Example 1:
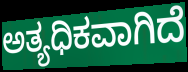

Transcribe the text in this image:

ಅತ್ಯಧಿಕವಾಗಿದೆ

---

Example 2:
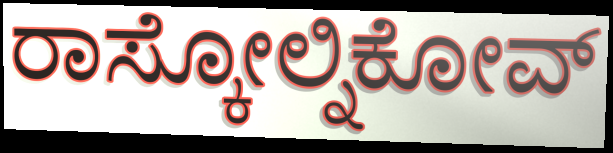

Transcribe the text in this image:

ರಾಸ್ಕೋಲ್ನಿಕೋವ್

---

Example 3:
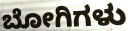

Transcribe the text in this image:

ಬೋಗಿಗಳು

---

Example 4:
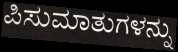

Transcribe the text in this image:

ಪಿಸುಮಾತುಗಳನ್ನು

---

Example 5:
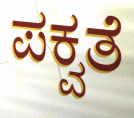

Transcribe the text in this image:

ಪಕ್ವತೆ